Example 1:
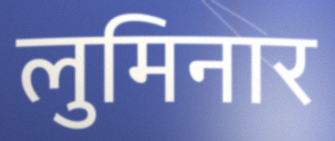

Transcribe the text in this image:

लुमिनार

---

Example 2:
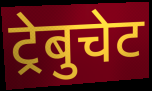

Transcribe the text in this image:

ट्रेबुचेट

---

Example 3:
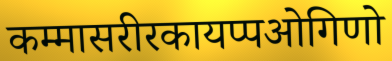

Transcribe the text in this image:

कम्मासरीरकायप्पओगिणो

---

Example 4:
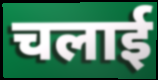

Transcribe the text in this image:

चलाई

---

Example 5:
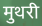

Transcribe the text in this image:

मुथरी